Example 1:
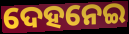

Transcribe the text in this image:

ଦେହନେଇ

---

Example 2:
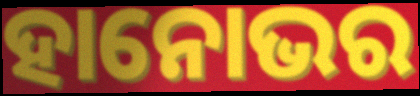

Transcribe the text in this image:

ହାନୋଭର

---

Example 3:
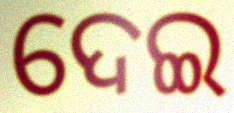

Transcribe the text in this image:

ଦେଇ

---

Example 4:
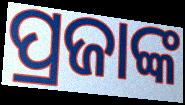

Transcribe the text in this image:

ପ୍ରଜାଙ୍କ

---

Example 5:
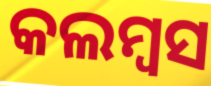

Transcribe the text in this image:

କଲମ୍ବସ